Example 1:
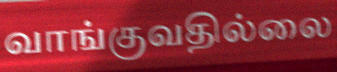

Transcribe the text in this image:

வாங்குவதில்லை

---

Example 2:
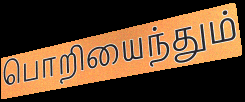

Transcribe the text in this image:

பொறியைந்தும்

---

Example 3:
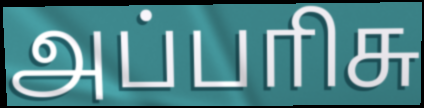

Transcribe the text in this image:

அப்பரிசு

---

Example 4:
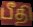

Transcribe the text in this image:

பீதி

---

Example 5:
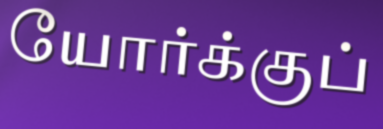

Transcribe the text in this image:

யோர்க்குப்